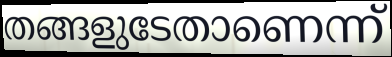
തങ്ങളുടേതാണെന്ന്